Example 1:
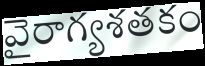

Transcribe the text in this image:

వైరాగ్యశతకం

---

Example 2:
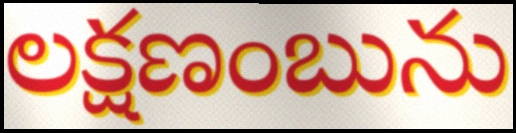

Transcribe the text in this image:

లక్షణంబును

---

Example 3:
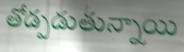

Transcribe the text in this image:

తోడ్పడుతున్నాయి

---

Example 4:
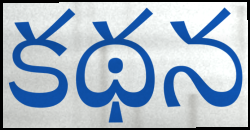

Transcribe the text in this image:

కథన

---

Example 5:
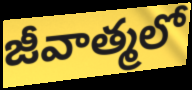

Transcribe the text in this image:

జీవాత్మలో